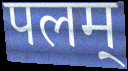
पलम्